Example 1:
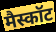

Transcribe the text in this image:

मैस्कॉट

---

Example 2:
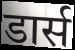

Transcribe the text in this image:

डार्स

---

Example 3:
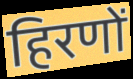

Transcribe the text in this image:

हिरणों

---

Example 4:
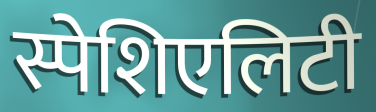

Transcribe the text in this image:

स्पेशिएलिटी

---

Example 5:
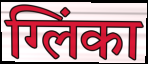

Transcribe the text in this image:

ग्लिंका